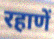
रहाणें